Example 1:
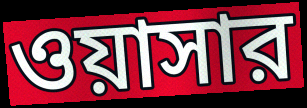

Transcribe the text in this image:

ওয়াসার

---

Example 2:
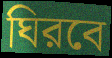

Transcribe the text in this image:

ঘিরবে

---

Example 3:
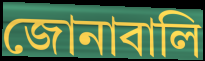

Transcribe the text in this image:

জোনাবালি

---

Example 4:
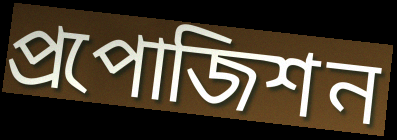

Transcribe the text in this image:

প্রপোজিশন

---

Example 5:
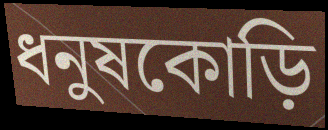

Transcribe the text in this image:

ধনুষকোড়ি